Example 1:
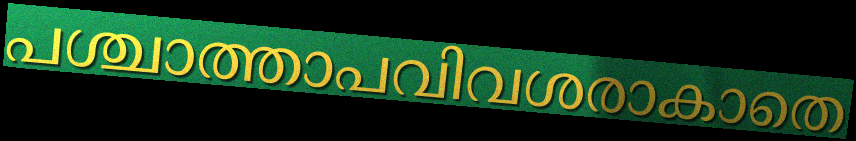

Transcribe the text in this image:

പശ്ചാത്താപവിവശരാകാതെ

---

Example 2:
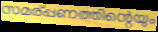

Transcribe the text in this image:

സമര്പ്പണത്തിന്റെയും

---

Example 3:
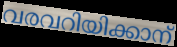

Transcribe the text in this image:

വരവറിയിക്കാന്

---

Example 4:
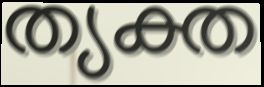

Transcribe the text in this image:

ത്യക്ത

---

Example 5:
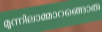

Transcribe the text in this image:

മുന്നിലാമ്മാറങ്ങൊരു